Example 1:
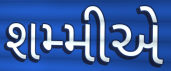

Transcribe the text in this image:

શમ્મીએ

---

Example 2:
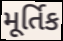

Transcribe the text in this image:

મૂર્તિક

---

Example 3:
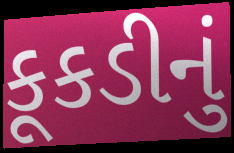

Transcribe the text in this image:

કૂકડીનું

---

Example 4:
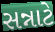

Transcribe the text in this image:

સન્નાટે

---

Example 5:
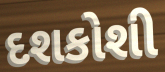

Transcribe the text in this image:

દશકોશી